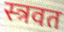
स्त्रवत